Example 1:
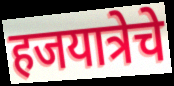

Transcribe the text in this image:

हजयात्रेचे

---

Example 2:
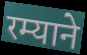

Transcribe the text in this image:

रम्याने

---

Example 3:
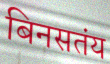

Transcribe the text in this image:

बिनसतंय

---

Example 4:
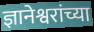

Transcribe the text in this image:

ज्ञानेश्वरांच्या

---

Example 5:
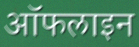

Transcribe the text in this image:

ऑफलाइन